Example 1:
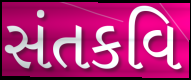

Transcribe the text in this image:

સંતકવિ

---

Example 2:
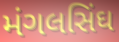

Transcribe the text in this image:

મંગલસિંઘ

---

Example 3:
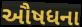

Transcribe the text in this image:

ઔષધના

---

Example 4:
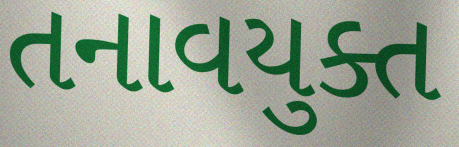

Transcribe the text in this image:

તનાવયુક્ત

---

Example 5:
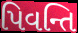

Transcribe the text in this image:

પિવન્તિ